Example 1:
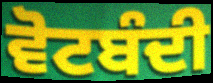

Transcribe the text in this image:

ਵੋਟਬੰਦੀ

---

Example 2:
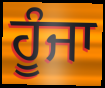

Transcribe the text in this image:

ਹੂੰਜਾ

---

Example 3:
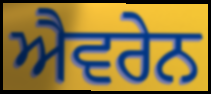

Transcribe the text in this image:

ਐਵਰੇਨ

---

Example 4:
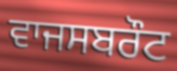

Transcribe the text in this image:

ਵਾਜਸਬਰੌਟ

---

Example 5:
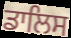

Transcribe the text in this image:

ਡਾਲਿਸ